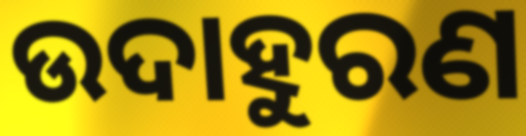
ଉଦାହୁରଣ